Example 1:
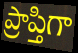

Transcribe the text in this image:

ప్రాప్తిగా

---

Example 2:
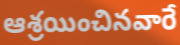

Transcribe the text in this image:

ఆశ్రయించినవారే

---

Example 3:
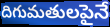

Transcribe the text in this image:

దిగుమతులపైనే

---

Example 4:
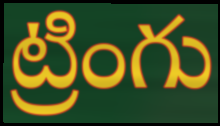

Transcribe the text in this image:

ట్రింగు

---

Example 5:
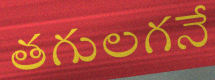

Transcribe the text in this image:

తగులగనే